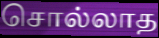
சொல்லாத